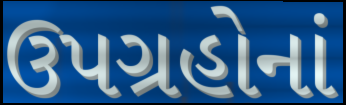
ઉપગ્રહોનાં